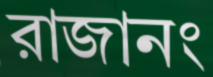
রাজানং